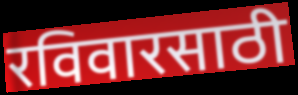
रविवारसाठी